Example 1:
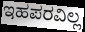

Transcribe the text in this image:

ಇಹಪರವಿಲ್ಲ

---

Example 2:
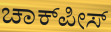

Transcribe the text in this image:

ಚಾಕ್‍ಪೀಸ್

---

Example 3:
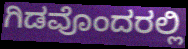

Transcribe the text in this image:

ಗಿಡವೊಂದರಲ್ಲಿ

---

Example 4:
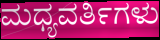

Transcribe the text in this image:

ಮಧ್ಯವರ್ತಿಗಳು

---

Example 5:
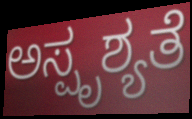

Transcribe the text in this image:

ಅಸ್ಪೃಶ್ಯತೆ